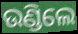
ଉଣ୍ଡିଲେ